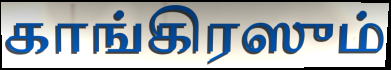
காங்கிரஸும்